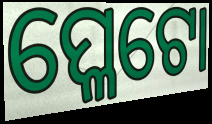
ପ୍ଳେଟୋ